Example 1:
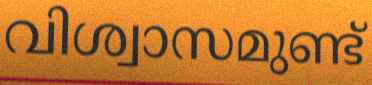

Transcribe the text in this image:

വിശ്വാസമുണ്ട്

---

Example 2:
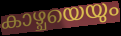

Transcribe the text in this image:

കാഴ്ചയെയും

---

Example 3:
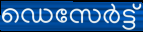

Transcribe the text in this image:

ഡെസേർട്ട്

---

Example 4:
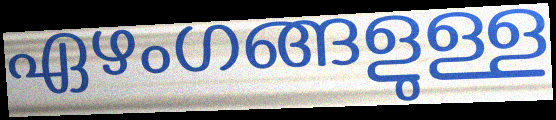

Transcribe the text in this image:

ഏഴംഗങ്ങളുള്ള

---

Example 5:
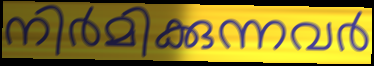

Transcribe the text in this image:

നിർമിക്കുന്നവർ